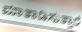
ಮಾತಾಡಿಸುತ್ತಾರೆ